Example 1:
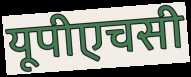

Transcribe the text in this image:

यूपीएचसी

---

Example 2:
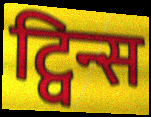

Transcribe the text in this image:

ट्विन्स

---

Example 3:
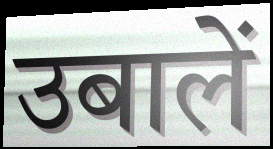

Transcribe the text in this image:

उबालें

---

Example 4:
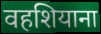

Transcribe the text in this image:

वहशियाना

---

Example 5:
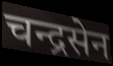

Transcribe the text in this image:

चन्द्रसेन